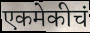
एकमेकीचं